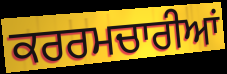
ਕਰਰਮਚਾਰੀਆਂ